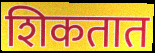
शिकतात